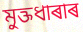
মুক্তধাৰাৰ